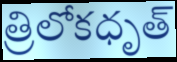
త్రిలోకధృత్